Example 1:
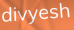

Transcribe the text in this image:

divyesh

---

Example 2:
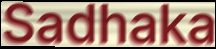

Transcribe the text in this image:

Sadhaka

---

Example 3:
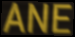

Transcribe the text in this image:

ANE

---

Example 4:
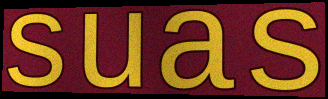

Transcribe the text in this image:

suas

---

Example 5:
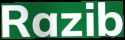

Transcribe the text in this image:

Razib